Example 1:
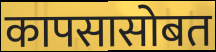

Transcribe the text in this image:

कापसासोबत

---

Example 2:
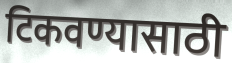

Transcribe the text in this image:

टिकवण्यासाठी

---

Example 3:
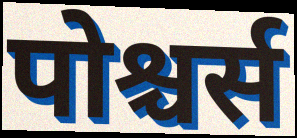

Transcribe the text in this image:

पोश्चर्स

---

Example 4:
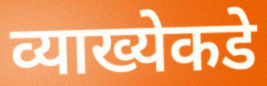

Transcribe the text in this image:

व्याख्येकडे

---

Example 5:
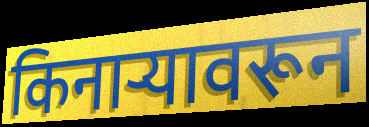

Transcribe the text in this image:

किनाऱ्यावरून